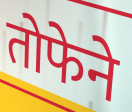
तोफेने